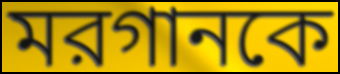
মরগানকে